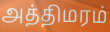
அத்திமரம்